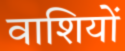
वाशियों